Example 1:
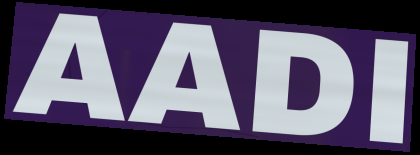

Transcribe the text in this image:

AADI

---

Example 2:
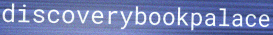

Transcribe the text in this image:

discoverybookpalace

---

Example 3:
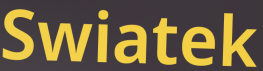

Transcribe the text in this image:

Swiatek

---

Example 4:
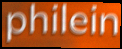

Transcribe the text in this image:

philein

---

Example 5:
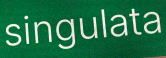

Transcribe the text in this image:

singulata